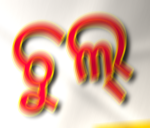
ଚୁଲ୍